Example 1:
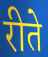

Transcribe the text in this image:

रीते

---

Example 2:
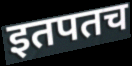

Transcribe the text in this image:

इतपतच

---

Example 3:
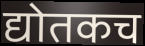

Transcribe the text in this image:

द्योतकच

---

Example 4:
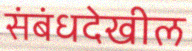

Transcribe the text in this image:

संबंधदेखील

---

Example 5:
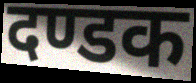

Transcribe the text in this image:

दण्डक